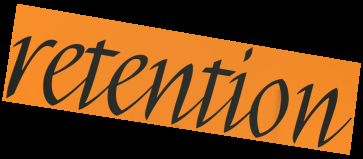
retention